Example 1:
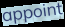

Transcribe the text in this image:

appoint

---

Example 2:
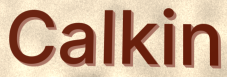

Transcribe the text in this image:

Calkin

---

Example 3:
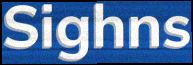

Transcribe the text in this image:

Sighns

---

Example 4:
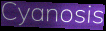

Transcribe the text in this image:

Cyanosis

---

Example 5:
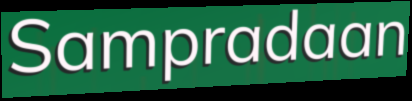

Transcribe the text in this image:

Sampradaan